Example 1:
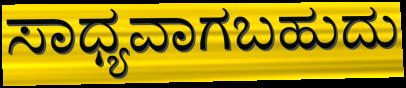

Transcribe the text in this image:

ಸಾಧ್ಯವಾಗಬಹುದು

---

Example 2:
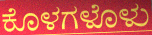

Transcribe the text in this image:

ಕೊಳಗಳೊಳು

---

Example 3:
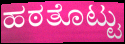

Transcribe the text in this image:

ಹಠತೊಟ್ಟು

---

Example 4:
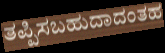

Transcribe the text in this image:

ತಪ್ಪಿಸಬಹುದಾದಂತಹ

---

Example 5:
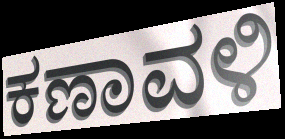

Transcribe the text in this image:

ಕಣಾವಳಿ